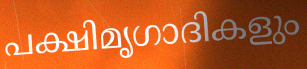
പക്ഷിമൃഗാദികളും